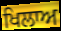
ਖਿਲਾਅ